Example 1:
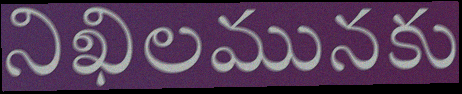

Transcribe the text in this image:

నిఖిలమునకు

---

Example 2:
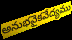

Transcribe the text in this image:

అనుభవైకవేద్యము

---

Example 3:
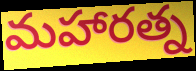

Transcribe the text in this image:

మహారత్న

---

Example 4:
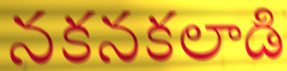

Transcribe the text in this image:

నకనకలాడి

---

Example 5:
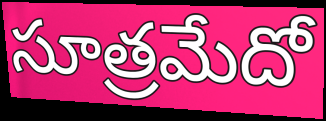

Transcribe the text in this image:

సూత్రమేదో